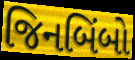
જિનબિંબો